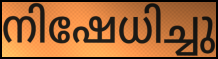
നിഷേധിച്ചു